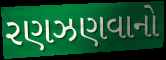
રણઝણવાનો